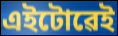
এইটোৱেই